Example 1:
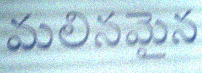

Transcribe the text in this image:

మలినమైన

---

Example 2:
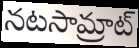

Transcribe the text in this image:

నటసామ్రాట్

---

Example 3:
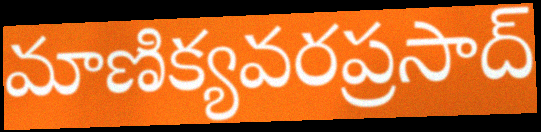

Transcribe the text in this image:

మాణిక్యవరప్రసాద్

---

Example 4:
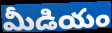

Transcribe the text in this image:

మీడియం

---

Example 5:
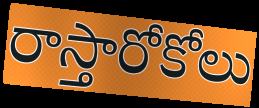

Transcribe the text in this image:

రాస్తారోకోలు